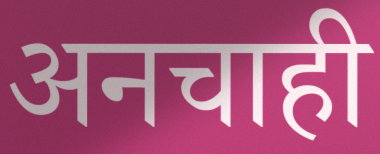
अनचाही